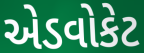
એડવોકેટ